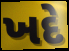
ખદે